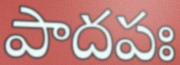
పాదపః